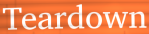
Teardown